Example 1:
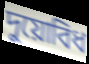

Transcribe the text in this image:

দুয়োবিধ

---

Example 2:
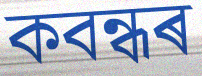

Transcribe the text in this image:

কবন্ধৰ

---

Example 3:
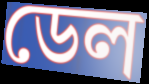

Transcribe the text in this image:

ডেল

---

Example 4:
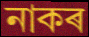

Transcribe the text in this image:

নাকৰ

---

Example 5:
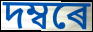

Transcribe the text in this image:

দম্বৰে